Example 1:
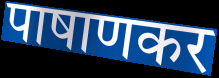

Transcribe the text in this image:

पाषाणकर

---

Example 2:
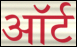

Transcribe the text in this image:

ऑर्ट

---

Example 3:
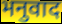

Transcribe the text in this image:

भनुवाद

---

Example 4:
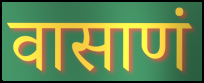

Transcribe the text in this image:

वासाणं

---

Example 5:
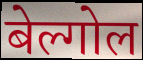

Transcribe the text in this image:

बेल्गोल